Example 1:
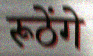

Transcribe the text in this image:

रूठेंगे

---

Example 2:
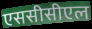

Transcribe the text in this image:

एससीसीएल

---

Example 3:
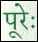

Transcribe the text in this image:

पूरेः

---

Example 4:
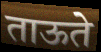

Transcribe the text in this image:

ताऊते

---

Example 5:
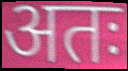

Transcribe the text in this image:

अतः